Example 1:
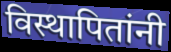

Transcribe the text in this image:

विस्थापितांनी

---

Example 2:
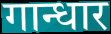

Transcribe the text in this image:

गान्धार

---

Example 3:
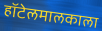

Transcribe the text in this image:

हॉटेलमालकाला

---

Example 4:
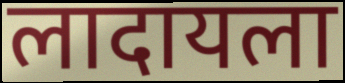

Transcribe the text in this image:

लादायला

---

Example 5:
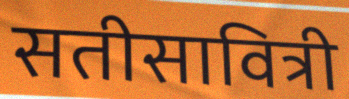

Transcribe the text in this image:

सतीसावित्री